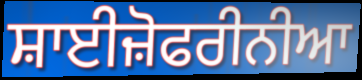
ਸ਼ਾਈਜ਼ੋਫਰੀਨੀਆ